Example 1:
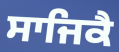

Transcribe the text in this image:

ਸਾਜਿਕੈ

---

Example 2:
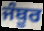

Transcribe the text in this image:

ਜੰਬੂਰ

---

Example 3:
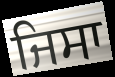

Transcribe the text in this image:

ਜਿਸਾ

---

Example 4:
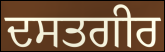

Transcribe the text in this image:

ਦਸਤਗੀਰ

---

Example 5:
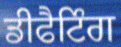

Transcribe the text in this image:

ਡੀਫੈਟਿੰਗ